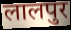
लालपुर